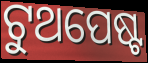
ଟୁଥପେଷ୍ଟ